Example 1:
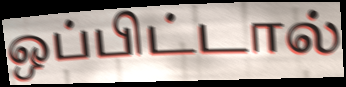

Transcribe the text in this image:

ஒப்பிட்டால்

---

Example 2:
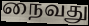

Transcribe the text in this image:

நைவது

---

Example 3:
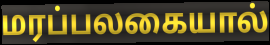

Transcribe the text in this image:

மரப்பலகையால்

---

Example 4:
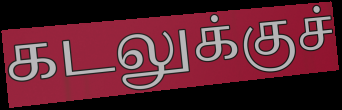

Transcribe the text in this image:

கடலுக்குச்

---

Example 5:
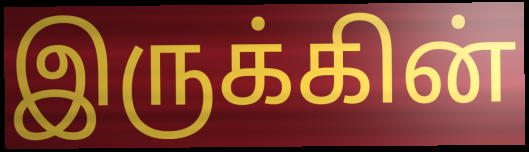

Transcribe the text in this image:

இருக்கின்